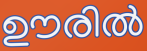
ഊരിൽ